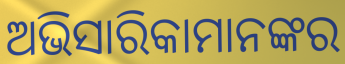
ଅଭିସାରିକାମାନଙ୍କର